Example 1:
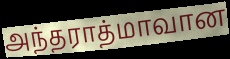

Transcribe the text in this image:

அந்தராத்மாவான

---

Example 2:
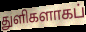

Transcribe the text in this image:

துளிகளாகப்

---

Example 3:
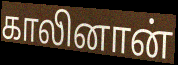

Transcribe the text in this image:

காலினான்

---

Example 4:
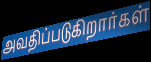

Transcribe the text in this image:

அவதிப்படுகிறார்கள்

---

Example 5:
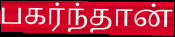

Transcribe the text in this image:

பகர்ந்தான்